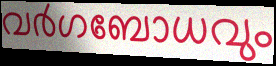
വർഗബോധവും